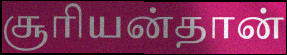
சூரியன்தான்